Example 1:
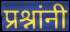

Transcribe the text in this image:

प्रश्नांनी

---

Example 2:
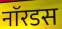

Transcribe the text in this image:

नॉरडस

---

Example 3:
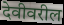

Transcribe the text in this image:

देवीवरील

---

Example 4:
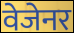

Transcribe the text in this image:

वेजेनर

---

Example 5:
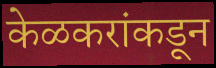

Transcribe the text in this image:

केळकरांकडून